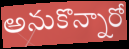
అనుకొన్నారో